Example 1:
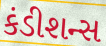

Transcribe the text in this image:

કંડીશન્સ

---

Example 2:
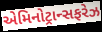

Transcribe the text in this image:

એમિનોટ્રાન્સફરેઝ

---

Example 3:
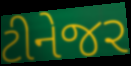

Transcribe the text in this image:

ટીનેજર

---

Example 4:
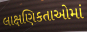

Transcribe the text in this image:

લાક્ષણિકતાઓમાં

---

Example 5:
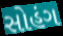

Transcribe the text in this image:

સોહંગ